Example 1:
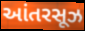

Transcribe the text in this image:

આંતરસૂઝ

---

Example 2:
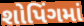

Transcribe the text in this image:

શોપિંગમાં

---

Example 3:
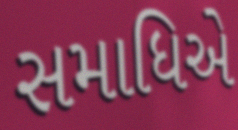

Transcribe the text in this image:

સમાધિએ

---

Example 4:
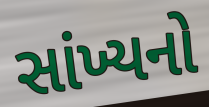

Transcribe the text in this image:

સાંખ્યનો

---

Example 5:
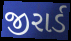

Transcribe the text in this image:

જીરાર્ડ